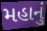
મહાનું